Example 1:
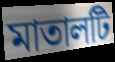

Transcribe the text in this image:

মাতালটি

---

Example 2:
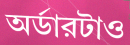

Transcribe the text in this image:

অর্ডারটাও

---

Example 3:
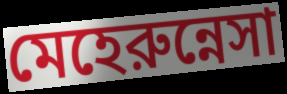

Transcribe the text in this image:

মেহেরুন্নেসা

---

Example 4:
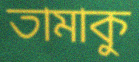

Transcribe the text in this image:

তামাকু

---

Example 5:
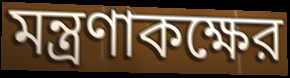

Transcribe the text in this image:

মন্ত্রণাকক্ষের